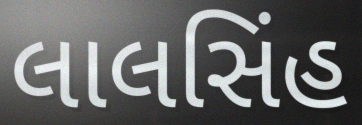
લાલસિંહ